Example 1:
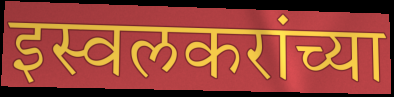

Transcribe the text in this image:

इस्वलकरांच्या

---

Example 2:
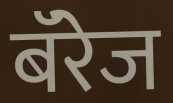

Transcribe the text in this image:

बॅरेज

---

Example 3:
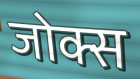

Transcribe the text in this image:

जोक्स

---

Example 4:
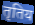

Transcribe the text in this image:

तृतिय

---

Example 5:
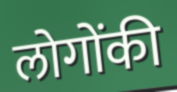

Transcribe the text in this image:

लोगोंकी